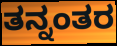
ತನ್ನಂತರ